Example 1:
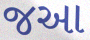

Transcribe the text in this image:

જઆ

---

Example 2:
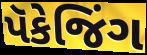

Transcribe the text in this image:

પૅકેજિંગ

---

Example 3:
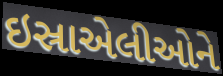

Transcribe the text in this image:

ઇસ્રાએલીઓને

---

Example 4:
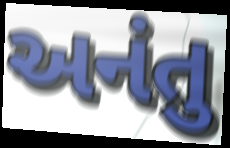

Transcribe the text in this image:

અનંતુ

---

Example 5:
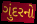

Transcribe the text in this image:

ગુંદરનો